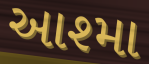
આશ્મા